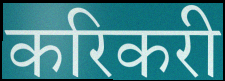
करिकरी